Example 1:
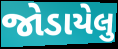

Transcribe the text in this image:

જોડાયેલુ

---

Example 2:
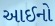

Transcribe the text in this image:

આઈનો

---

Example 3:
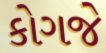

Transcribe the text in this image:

કોગજે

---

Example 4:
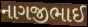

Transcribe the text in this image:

નાગજીભાઈ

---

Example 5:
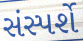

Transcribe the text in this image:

સંસ્પર્શે